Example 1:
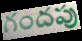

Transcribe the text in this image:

గందపు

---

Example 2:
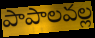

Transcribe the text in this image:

పాపాలవల్ల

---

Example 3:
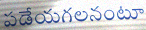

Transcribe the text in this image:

పడేయగలనంటూ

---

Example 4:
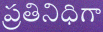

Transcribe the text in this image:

ప్రతినిధిగా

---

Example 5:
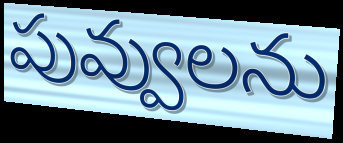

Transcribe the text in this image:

పువ్వులను